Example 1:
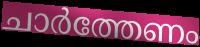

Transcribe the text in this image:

ചാർത്തേണം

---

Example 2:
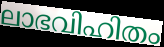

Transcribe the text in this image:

ലാഭവിഹിതം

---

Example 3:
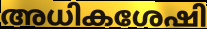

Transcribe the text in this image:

അധികശേഷി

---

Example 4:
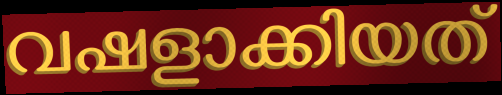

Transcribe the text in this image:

വഷളാക്കിയത്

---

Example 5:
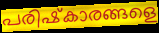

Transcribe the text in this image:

പരിഷ്‌കാരങ്ങളെ